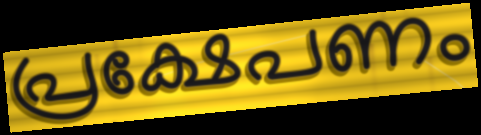
പ്രക്ഷേപണം